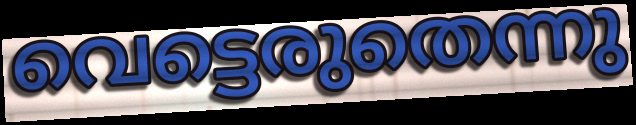
വെട്ടെരുതെന്നു